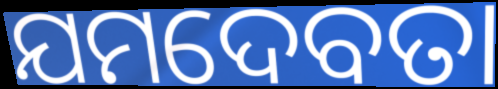
ଯମଦେବତା